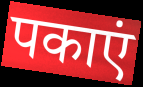
पकाएं